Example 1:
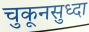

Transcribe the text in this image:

चुकूनसुध्दा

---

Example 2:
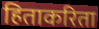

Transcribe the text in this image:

हिताकरिता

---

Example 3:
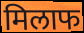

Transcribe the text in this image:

मिलाफ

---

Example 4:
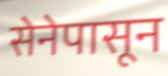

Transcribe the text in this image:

सेनेपासून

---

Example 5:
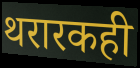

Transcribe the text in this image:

थरारकही